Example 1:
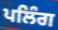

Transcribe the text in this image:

ਪਲਿੰਗ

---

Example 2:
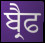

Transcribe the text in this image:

ਬ੍ਰੈਫ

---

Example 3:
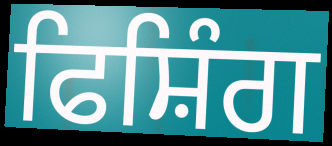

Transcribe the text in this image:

ਫਿਸ਼ਿੰਗ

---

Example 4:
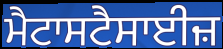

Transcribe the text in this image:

ਮੈਟਾਸਟੈਸਾਈਜ਼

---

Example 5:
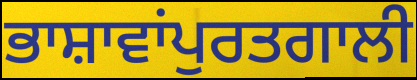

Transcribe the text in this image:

ਭਾਸ਼ਾਵਾਂਪੁਰਤਗਾਲੀ